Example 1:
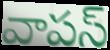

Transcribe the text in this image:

వాపస్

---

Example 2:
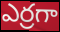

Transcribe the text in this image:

ఎర్రగా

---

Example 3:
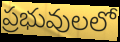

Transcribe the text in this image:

ప్రభువులలో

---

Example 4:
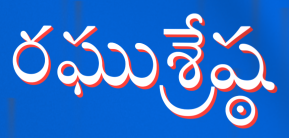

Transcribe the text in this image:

రఘుశ్రేష్ఠ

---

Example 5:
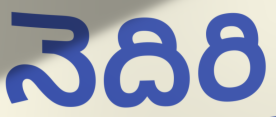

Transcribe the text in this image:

నెదిరి